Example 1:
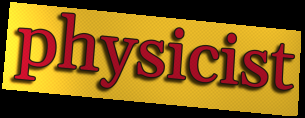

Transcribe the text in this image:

physicist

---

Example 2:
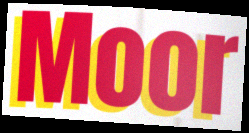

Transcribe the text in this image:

Moor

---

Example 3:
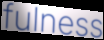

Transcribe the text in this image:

fulness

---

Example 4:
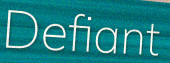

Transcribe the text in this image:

Defiant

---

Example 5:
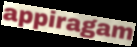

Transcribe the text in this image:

appiragam